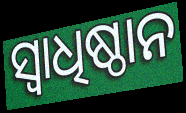
ସ୍ୱାଧିଷ୍ଠାନ